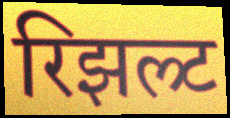
रिझल्ट